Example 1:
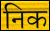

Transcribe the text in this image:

निक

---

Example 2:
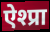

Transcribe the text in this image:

ऐश्प्रा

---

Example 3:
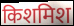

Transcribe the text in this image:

किशमिश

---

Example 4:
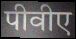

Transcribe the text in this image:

पीवीए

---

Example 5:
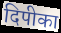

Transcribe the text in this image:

दिपीका